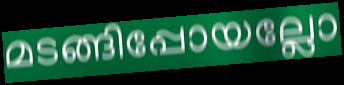
മടങ്ങിപ്പോയല്ലോ